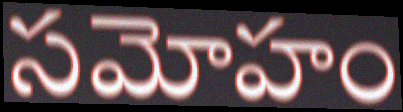
సమోహం